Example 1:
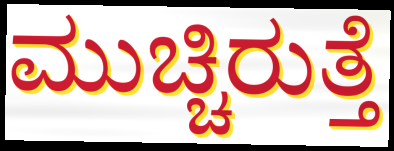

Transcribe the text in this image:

ಮುಚ್ಚಿರುತ್ತೆ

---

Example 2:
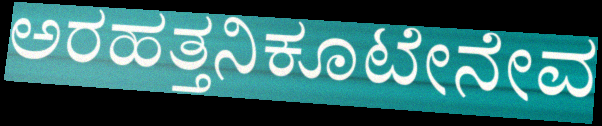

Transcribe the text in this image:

ಅರಹತ್ತನಿಕೂಟೇನೇವ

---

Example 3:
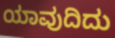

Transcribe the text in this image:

ಯಾವುದಿದು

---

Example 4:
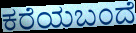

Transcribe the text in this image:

ಕರೆಯಬಂದೆ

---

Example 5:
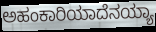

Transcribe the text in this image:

ಅಹಂಕಾರಿಯಾದೆನಯ್ಯಾ